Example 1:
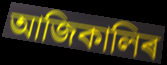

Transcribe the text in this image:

আজিকালিৰ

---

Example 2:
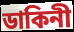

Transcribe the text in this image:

ডাকিনী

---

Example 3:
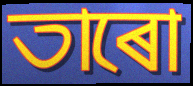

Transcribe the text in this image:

তাৰো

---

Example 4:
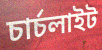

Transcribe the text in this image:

চাৰ্চলাইট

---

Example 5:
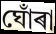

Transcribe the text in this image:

ঘোঁৰা